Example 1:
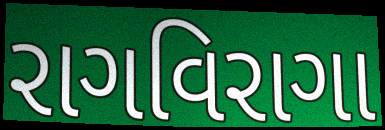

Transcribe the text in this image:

રાગવિરાગા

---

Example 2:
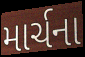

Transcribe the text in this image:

માર્ચના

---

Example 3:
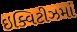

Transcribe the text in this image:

ઇક્વિટીઝમાં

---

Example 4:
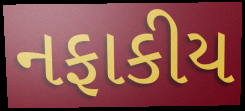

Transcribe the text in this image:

નફાકીય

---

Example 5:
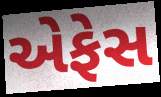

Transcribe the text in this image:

એફેસ